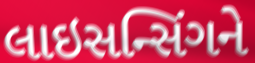
લાઇસન્સિંગને